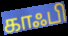
காஃபி